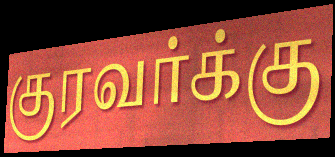
குரவர்க்கு